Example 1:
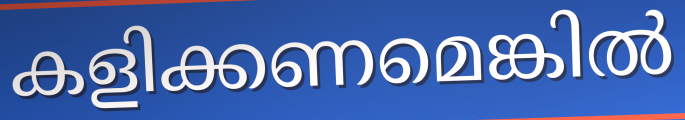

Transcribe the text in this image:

കളിക്കണമെങ്കിൽ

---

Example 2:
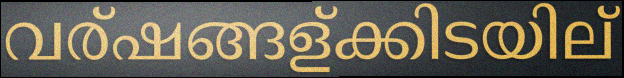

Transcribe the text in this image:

വര്ഷങ്ങള്ക്കിടയില്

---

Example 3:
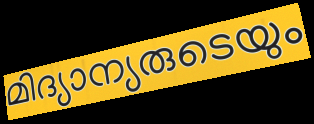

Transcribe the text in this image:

മിദ്യാന്യരുടെയും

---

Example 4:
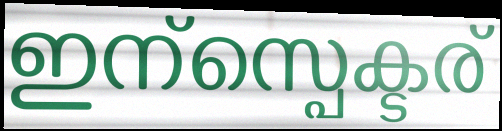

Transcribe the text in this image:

ഇന്സ്പെക്ടര്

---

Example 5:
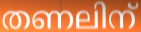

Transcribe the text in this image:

തണലിന്